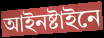
আইনষ্টাইনে